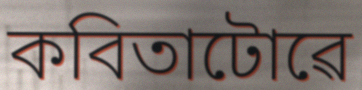
কবিতাটোৱে